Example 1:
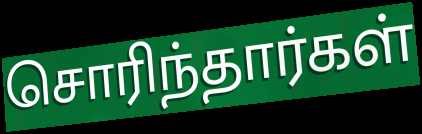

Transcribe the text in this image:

சொரிந்தார்கள்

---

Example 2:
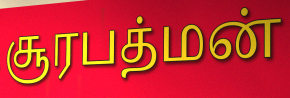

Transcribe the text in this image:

சூரபத்மன்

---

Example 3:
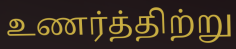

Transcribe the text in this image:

உணர்த்திற்று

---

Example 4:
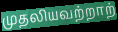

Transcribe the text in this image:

முதலியவற்றாற்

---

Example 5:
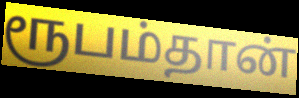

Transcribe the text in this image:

ரூபம்தான்